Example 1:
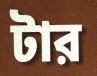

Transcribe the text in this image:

টার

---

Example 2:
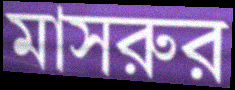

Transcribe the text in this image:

মাসরুর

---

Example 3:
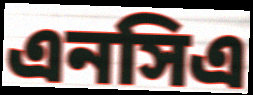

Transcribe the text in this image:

এনসিএ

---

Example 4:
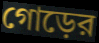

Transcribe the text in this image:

গোড়ের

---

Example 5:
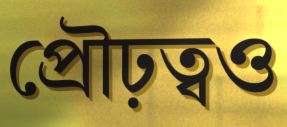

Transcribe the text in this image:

প্রৌঢ়ত্বও